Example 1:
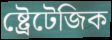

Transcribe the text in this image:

ষ্ট্ৰেটেজিক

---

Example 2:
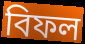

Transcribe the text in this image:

বিফল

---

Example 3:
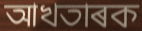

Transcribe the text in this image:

আখতাৰক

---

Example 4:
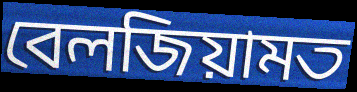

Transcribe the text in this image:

বেলজিয়ামত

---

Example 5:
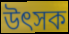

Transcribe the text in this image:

উৎসক